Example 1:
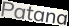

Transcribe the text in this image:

Patana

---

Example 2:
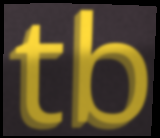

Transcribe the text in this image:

tb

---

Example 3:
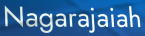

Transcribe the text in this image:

Nagarajaiah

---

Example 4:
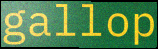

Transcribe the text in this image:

gallop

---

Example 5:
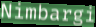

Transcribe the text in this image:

Nimbargi